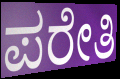
ಪರೇತಿ